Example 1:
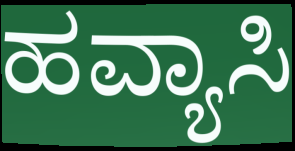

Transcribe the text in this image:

ಹವ್ಯಾಸಿ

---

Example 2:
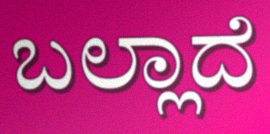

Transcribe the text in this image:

ಬಲ್ಲಾದೆ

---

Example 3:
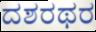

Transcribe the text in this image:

ದಶರಥರ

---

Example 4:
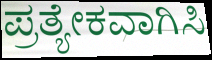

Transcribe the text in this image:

ಪ್ರತ್ಯೇಕವಾಗಿಸಿ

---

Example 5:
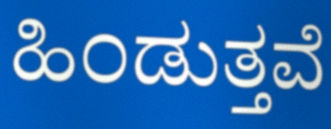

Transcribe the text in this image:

ಹಿಂಡುತ್ತವೆ